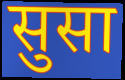
सुसा